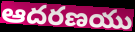
ఆదరణయు